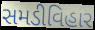
સમડીવિહાર